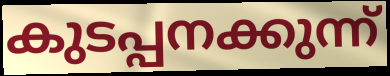
കുടപ്പനക്കുന്ന്